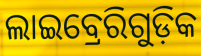
ଲାଇବ୍ରେରିଗୁଡ଼ିକ